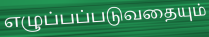
எழுப்பப்படுவதையும்